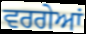
ਵਰਗੇਆਂ